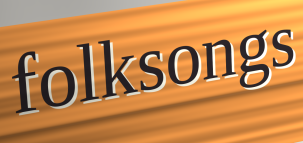
folksongs